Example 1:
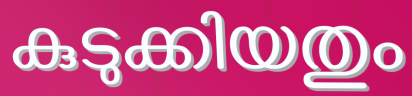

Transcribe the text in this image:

കുടുക്കിയതും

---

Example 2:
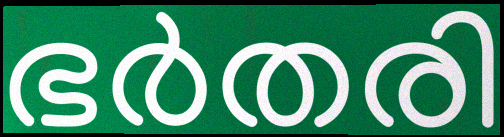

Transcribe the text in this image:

ഭർതരി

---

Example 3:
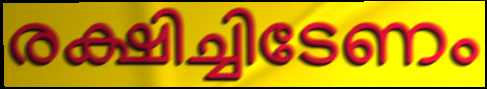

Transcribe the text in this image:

രക്ഷിച്ചിടേണം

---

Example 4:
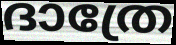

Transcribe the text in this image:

ദാത്രേ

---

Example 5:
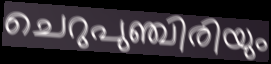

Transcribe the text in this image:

ചെറുപുഞ്ചിരിയും